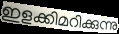
ഇളക്കിമറിക്കുന്നു